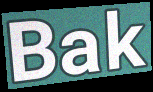
Bak